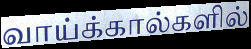
வாய்க்கால்களில்